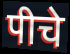
पीचे